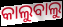
କାଲୁବାଲୁ